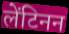
लेंटिनन